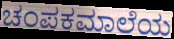
ಚಂಪಕಮಾಲೆಯ